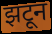
झटून